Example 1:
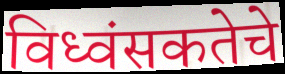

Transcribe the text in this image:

विध्वंसकतेचे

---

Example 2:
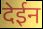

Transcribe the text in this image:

देईन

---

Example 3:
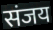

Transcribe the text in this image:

संजय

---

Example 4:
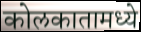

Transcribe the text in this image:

कोलकातामध्ये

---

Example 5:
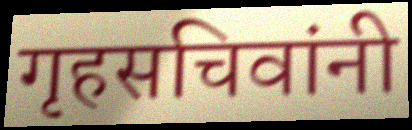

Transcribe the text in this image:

गृहसचिवांनी